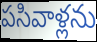
పసివాళ్లను